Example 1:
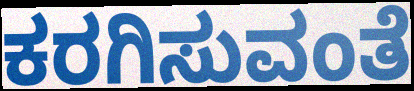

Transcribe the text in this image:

ಕರಗಿಸುವಂತೆ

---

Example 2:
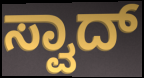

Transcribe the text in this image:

ಸ್ವಾದ್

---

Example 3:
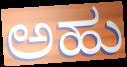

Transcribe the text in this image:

ಅಹು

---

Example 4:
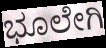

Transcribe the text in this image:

ಭೂಲೇಗಿ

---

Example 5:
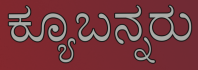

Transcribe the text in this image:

ಕ್ಯೂಬನ್ನರು